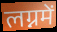
लग्नमें